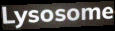
Lysosome